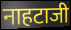
नाहटाजी